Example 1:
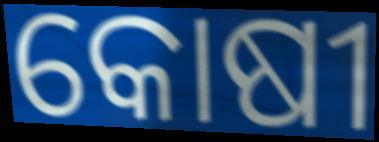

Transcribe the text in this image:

କୋଷୀ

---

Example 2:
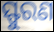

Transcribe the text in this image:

ସ୍ଫୁରଣ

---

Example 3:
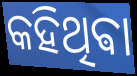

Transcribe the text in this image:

କହିଥିଵା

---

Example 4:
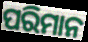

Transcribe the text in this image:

ପରିମାନ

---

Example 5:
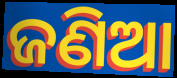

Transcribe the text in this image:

ଜଣିଆ